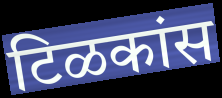
टिळकांस